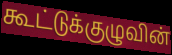
கூட்டுக்குழுவின்